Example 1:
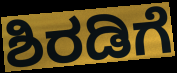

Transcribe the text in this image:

ಶಿರಡಿಗೆ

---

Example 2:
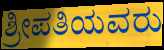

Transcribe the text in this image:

ಶ್ರೀಪತಿಯವರು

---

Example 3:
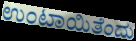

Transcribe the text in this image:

ಉಂಟಾಯಿತೆಂದು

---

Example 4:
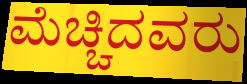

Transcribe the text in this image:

ಮೆಚ್ಚಿದವರು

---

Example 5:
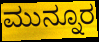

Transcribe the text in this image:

ಮುನ್ನೂರ